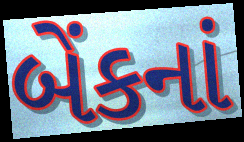
બેંકનાં